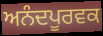
ਅਨੰਦਪੂਰਵਕ